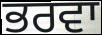
ਭਰਵਾ